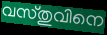
വസ്തുവിനെ